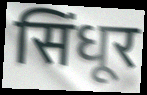
सिंधूर